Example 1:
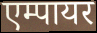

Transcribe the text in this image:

एम्पायर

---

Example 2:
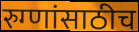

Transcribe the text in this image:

रुग्णांसाठीच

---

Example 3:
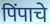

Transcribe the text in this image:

पिंपाचे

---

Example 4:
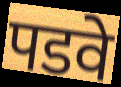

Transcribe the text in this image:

पडवे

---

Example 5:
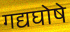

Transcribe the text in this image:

गद्यघोषे